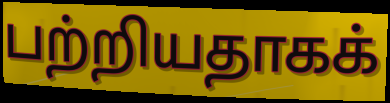
பற்றியதாகக்